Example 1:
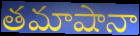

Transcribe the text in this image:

తమాషానా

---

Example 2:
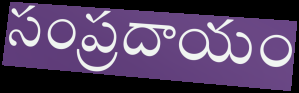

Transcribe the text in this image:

సంప్రదాయం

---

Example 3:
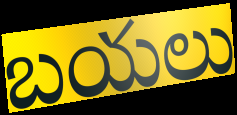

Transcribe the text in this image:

బయలు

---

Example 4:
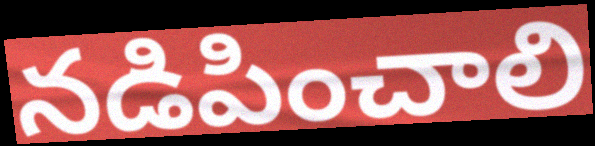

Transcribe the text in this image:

నడిపించాలి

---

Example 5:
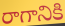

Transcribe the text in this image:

రాగానికి